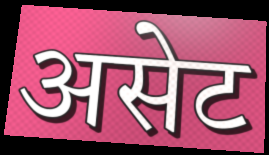
असेट